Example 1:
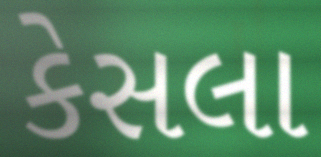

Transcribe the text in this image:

કેસલા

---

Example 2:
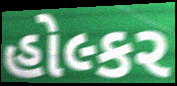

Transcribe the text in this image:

હોલ્કર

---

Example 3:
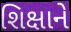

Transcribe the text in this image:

શિક્ષાને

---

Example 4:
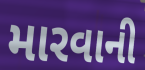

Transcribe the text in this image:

મારવાની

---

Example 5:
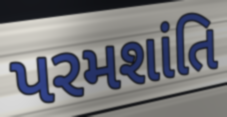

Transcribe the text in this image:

પરમશાંતિ